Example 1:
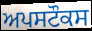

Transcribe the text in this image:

ਅਪਸਟੌਕਸ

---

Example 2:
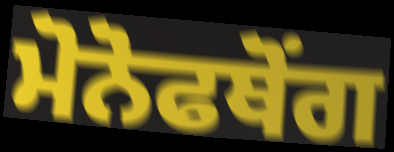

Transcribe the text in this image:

ਮੋਨੋਫਥੋਂਗ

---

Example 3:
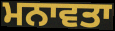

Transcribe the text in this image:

ਮਨਾਵਤਾ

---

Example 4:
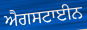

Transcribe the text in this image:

ਐਗਸਟਾਈਨ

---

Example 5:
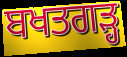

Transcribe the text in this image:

ਬਖਤਗੜ੍ਹ